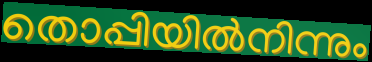
തൊപ്പിയിൽനിന്നും